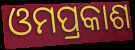
ଓମପ୍ରକାଶ